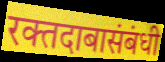
रक्तदाबासंबंधी